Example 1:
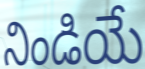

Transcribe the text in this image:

నిండియే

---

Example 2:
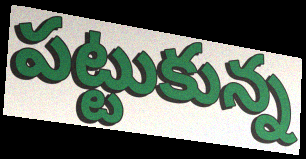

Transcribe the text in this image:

పట్టుకున్న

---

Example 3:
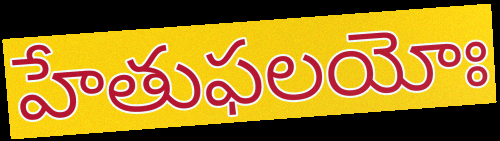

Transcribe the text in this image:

హేతుఫలయోః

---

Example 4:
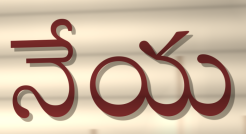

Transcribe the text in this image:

నేయ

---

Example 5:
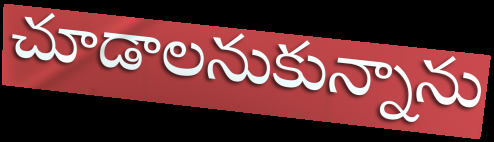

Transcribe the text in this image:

చూడాలనుకున్నాను